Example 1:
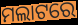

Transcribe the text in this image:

ମଲାଟରେ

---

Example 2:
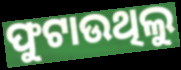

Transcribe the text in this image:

ଫୁଟାଉଥିଲୁ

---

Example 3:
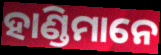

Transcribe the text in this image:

ହାଣ୍ଡିମାନେ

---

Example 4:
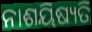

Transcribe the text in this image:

ନାଶୟିଷ୍ୟତି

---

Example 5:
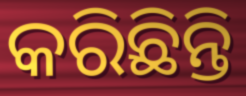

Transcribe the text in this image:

କରିଛିନ୍ତି